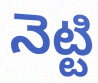
నెట్టి